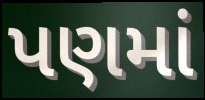
પણમાં